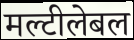
मल्टीलेबल